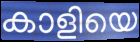
കാളിയെ